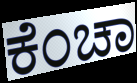
ಕೆಂಚಾ